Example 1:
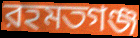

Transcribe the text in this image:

রহমতগঞ্জ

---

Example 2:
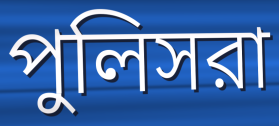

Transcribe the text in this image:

পুলিসরা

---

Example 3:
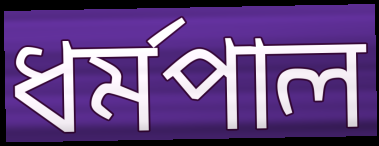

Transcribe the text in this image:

ধর্মপাল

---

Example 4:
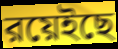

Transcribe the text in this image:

রয়েইছে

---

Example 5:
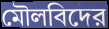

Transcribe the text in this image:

মৌলবিদের